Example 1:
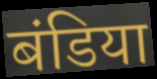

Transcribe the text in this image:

बंडिया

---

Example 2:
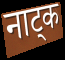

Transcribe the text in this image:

नाट्क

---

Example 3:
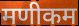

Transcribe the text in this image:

मणीकम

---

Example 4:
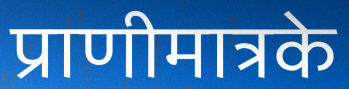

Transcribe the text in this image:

प्राणीमात्रके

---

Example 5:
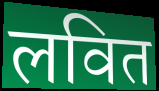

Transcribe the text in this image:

लवित